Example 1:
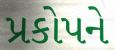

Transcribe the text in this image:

પ્રકોપને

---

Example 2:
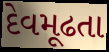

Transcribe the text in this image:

દેવમૂઢતા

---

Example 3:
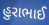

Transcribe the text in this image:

હુરાભાઈ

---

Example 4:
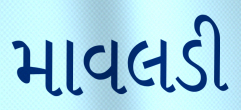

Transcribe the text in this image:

માવલડી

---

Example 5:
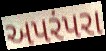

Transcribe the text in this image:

અપરંપરા